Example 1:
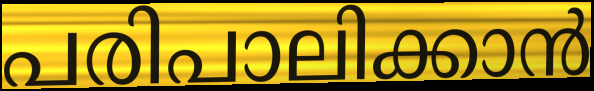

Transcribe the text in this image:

പരിപാലിക്കാൻ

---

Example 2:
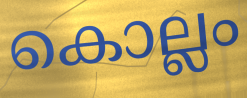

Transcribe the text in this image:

കൊല്ലം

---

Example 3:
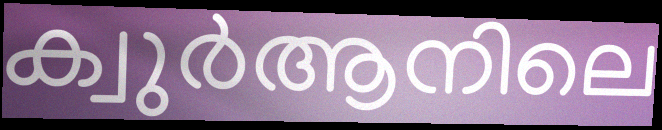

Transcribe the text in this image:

ക്വുർആനിലെ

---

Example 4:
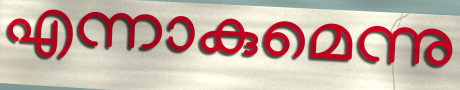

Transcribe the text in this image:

എന്നാകുമെന്നു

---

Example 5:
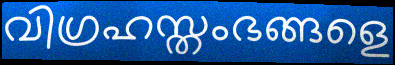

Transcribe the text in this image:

വിഗ്രഹസ്തംഭങ്ങളെ